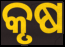
କୃଷ